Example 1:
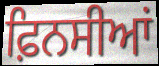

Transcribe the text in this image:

ਫ਼ਿਨਸੀਆਂ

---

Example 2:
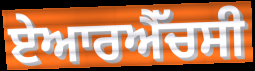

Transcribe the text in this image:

ਏਆਰਐੱਚਸੀ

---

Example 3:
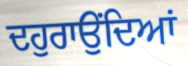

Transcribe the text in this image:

ਦਹੁਰਾਉਂਦਿਆਂ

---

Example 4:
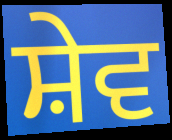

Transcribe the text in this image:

ਸ਼ੇਵ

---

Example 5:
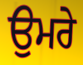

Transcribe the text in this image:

ਉਮਰੇ